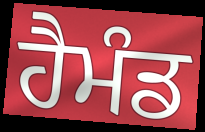
ਹੈਮੰਡ